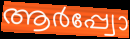
ആർപ്പ്വോ